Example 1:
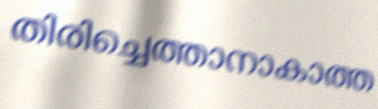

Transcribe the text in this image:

തിരിച്ചെത്താനാകാത്ത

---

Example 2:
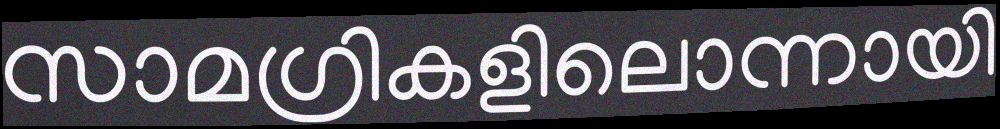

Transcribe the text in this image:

സാമഗ്രികളിലൊന്നായി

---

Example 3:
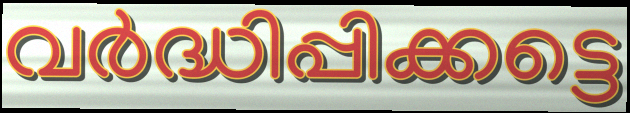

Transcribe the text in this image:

വർദ്ധിപ്പിക്കട്ടെ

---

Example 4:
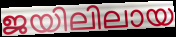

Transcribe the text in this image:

ജയിലിലായ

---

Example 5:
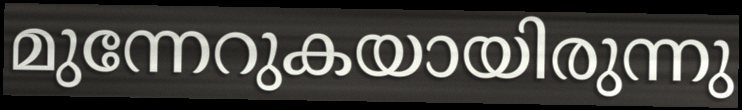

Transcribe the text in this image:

മുന്നേറുകയായിരുന്നു